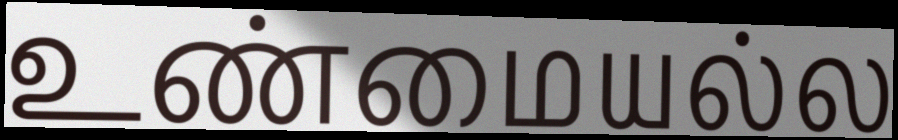
உண்மையல்ல